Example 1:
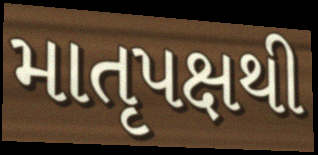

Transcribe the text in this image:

માતૃપક્ષથી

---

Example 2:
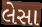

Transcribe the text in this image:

લેસા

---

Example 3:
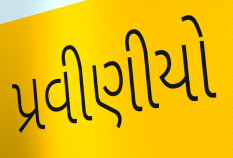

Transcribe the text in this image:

પ્રવીણીયો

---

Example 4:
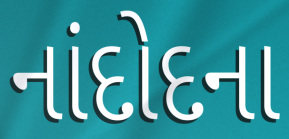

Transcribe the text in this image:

નાંદોદના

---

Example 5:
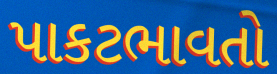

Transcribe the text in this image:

પાકટભાવતો